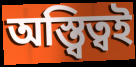
অস্ত্বিত্বই